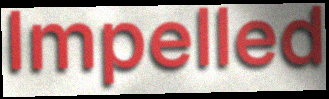
Impelled